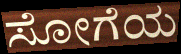
ಸೋಗೆಯ